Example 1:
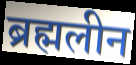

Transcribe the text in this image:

ब्रह्मलीन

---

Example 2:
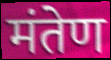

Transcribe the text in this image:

मंतेण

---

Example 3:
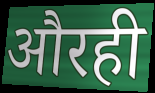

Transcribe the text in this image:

औरही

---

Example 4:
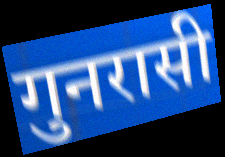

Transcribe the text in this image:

गुनरासी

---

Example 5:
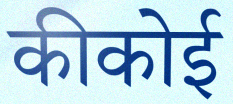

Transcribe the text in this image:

कीकोई